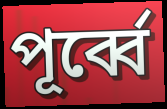
পূর্ব্বে